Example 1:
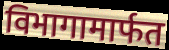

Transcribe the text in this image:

विभागामार्फत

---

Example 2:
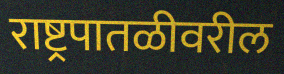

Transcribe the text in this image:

राष्ट्रपातळीवरील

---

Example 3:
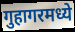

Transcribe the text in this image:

गुहागरमध्ये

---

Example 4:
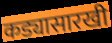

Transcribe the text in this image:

कड्यासारखी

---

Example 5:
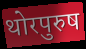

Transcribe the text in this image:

थोरपुरुष